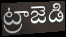
ట్రాజెడి